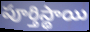
పూర్తిస్థాయి